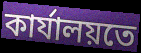
কাৰ্যালয়তে